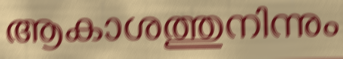
ആകാശത്തുനിന്നും